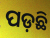
ପଡ଼ଛି